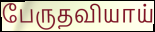
பேருதவியாய்